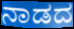
ನಾಡದ